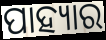
ପାହ୍ୟାର